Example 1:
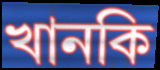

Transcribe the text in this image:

খানকি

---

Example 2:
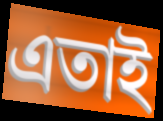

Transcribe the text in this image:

এতাই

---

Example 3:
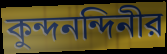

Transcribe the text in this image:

কুন্দনন্দিনীর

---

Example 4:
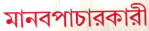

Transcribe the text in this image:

মানবপাচারকারী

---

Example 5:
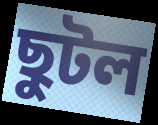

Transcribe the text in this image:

ছুটল